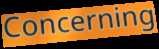
Concerning